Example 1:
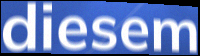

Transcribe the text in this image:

diesem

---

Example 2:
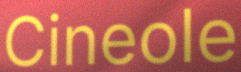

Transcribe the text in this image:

Cineole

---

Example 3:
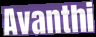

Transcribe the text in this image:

Avanthi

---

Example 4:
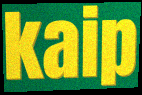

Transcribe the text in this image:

kaip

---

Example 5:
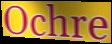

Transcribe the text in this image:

Ochre